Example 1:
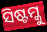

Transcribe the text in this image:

ସିଷ୍ଟମ୍କୁ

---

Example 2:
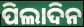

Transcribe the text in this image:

ପିଲାଦିନ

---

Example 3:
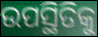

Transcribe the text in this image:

ଉପସ୍ଥିତିକୁ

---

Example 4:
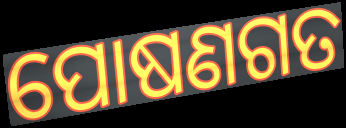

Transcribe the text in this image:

ପୋଷଣଗତ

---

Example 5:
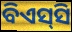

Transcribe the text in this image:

ବିଏସ୍‌ସି